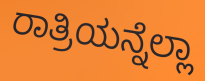
ರಾತ್ರಿಯನ್ನೆಲ್ಲಾ